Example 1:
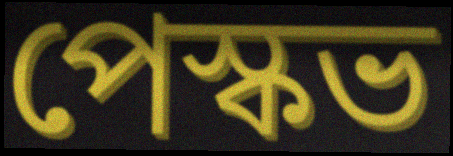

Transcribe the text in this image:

পেস্কভ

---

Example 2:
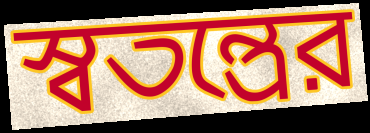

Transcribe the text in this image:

স্বতন্ত্রের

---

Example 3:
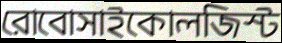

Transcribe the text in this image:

রোবোসাইকোলজিস্ট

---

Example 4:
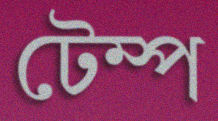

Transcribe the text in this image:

টেম্প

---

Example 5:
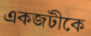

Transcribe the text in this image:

একজটীকে